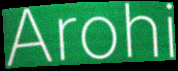
Arohi